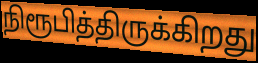
நிரூபித்திருக்கிறது